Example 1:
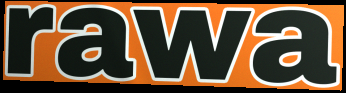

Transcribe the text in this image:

rawa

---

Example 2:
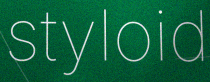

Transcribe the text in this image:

styloid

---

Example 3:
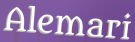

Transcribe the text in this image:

Alemari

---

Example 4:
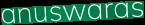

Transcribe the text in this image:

anuswaras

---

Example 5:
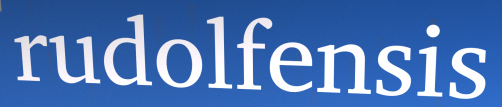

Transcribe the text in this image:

rudolfensis